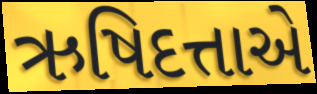
ઋષિદત્તાએ